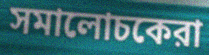
সমালোচকেরা